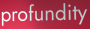
profundity